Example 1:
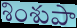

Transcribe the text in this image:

శింశుపా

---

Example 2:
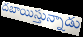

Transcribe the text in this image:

దబాయిస్తున్నాడు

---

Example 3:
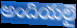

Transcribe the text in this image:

అందియలై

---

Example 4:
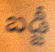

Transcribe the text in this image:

బడ్జీ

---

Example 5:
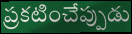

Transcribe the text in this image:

ప్రకటించేప్పుడు